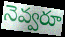
నెవ్వరూ